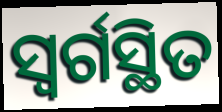
ସ୍ୱର୍ଗସ୍ଥିତ